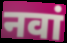
नवां